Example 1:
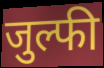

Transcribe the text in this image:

जुल्फी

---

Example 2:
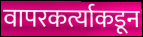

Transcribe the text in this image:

वापरकर्त्याकडून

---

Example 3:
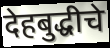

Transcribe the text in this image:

देहबुद्धीचे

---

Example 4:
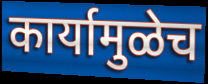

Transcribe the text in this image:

कार्यामुळेच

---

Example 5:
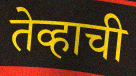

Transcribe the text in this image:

तेव्हाची